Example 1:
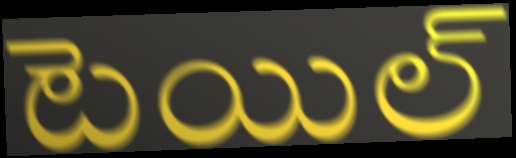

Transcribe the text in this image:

టెయిల్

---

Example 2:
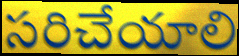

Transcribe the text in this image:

సరిచేయాలి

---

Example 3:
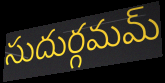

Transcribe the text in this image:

సుదుర్గమమ్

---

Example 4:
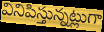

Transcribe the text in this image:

వినిపిస్తున్నట్లుగా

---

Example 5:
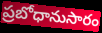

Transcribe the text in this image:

ప్రబోధానుసారం